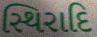
સ્થિરાદિ